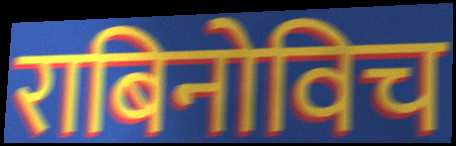
राबिनोविच